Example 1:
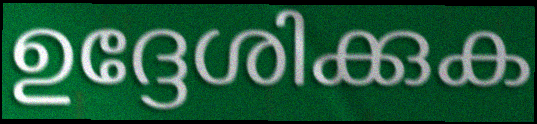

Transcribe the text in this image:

ഉദ്ദേശിക്കുക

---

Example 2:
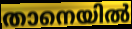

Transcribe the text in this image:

താനെയിൽ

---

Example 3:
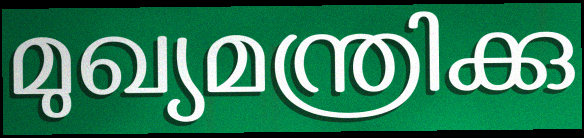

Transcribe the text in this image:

മുഖ്യമന്ത്രിക്കു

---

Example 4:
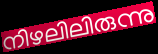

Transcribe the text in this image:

നിഴലിലിരുന്നു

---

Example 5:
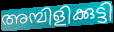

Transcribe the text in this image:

അമ്പിളിക്കുട്ടി